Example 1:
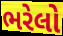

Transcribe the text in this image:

ભરેલો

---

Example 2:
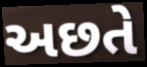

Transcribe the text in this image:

અછતે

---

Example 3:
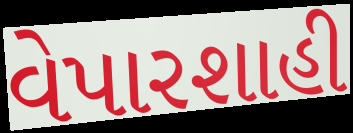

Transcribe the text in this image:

વેપારશાહી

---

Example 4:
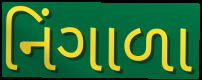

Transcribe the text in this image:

નિંગાળા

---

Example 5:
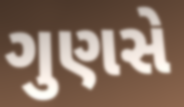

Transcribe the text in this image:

ગુણસે